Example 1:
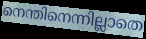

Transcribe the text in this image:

നെന്തിനെന്നില്ലാതെ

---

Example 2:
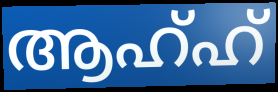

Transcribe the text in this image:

ആഹ്ഹ്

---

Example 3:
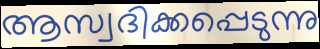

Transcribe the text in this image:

ആസ്വദിക്കപ്പെടുന്നു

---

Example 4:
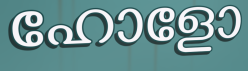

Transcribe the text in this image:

ഹോളോ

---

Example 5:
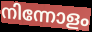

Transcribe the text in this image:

നിന്നോളം